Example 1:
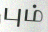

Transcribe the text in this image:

பும்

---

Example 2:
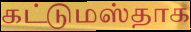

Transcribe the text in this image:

கட்டுமஸ்தாக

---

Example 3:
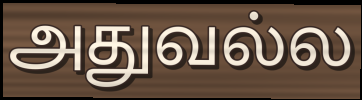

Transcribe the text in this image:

அதுவல்ல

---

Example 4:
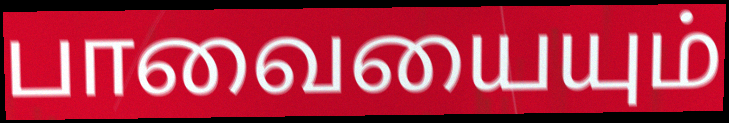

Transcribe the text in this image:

பாவையையும்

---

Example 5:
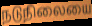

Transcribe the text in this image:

நடுநிலையை